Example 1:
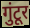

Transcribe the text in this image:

गुंटूर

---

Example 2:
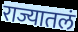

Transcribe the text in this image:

राज्यातलं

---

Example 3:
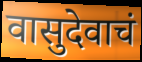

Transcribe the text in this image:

वासुदेवाचं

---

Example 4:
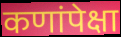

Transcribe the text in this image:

कणांपेक्षा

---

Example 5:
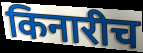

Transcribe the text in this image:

किनारीच